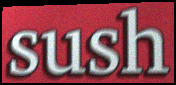
sush